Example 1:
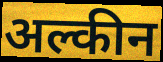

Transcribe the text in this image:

अल्कीन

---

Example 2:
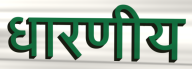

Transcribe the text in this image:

धारणीय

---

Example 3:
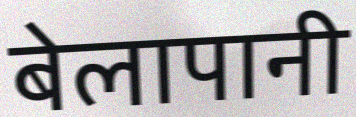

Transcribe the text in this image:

बेलापानी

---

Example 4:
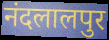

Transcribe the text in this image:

नंदलालपुर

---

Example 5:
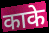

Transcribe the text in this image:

काके